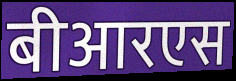
बीआरएस